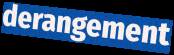
derangement